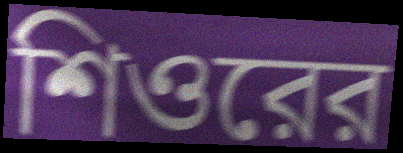
শিওরের